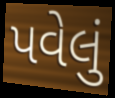
પવેલું